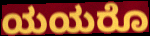
ಯಯರೊ